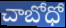
చాబోధో